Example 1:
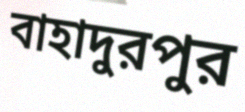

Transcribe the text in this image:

বাহাদুরপুর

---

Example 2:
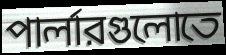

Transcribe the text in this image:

পার্লারগুলোতে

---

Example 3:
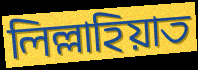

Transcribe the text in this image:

লিল্লাহিয়াত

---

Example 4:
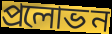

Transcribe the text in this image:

প্রলোভন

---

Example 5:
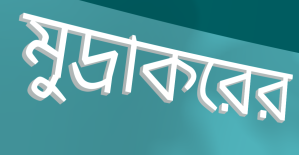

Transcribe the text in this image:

মুদ্রাকরের